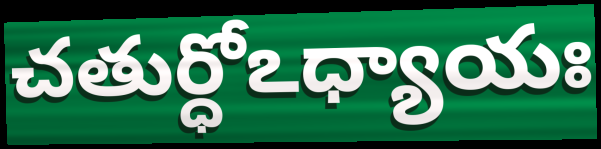
చతుర్ధోఽధ్యాయః